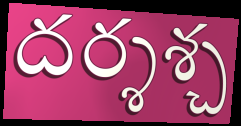
దర్శశ్చ